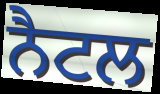
ਨੈਟਲ